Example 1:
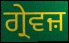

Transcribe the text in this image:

ਗ੍ਰੇਵਜ਼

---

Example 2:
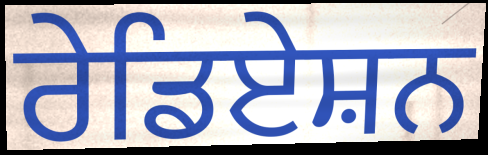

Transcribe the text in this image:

ਰੇਡਿਏਸ਼ਨ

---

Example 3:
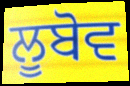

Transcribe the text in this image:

ਲੂਬੋਵ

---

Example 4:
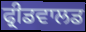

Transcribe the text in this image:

ਫ੍ਰੀਡਵਾਲਡ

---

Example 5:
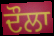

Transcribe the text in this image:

ਦੌਲਾ